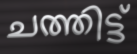
ചത്തിട്ട്